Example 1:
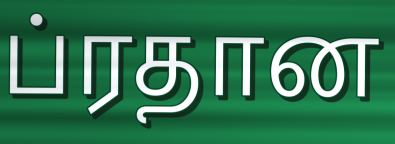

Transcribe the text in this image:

ப்ரதான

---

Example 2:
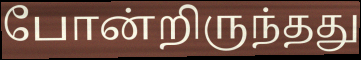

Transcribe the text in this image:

போன்றிருந்தது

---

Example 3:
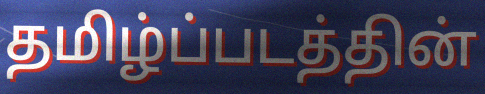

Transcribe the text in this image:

தமிழ்ப்படத்தின்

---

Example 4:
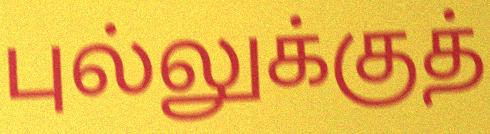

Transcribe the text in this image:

புல்லுக்குத்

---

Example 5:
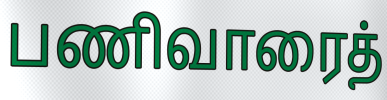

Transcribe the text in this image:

பணிவாரைத்